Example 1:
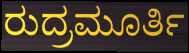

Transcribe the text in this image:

ರುದ್ರಮೂರ್ತಿ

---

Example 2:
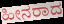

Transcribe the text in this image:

ಹೀನರಾದ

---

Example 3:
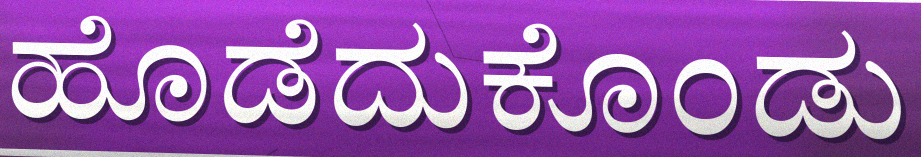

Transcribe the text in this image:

ಹೊಡೆದುಕೊಂಡು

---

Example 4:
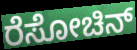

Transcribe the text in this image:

ರೆಸೋಚಿನ್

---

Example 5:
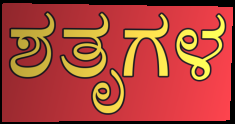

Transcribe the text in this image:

ಶತೃಗಳ